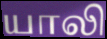
யாலி